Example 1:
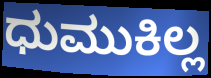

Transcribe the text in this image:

ಧುಮುಕಿಲ್ಲ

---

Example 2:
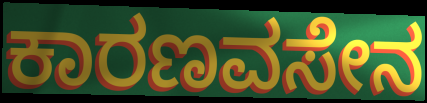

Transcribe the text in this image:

ಕಾರಣವಸೇನ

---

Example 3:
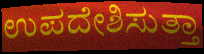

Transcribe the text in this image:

ಉಪದೇಶಿಸುತ್ತಾ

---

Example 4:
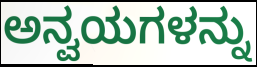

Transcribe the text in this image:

ಅನ್ವಯಗಳನ್ನು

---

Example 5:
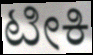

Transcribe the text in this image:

ಟೀಕಿ